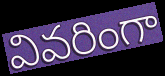
వివరింగా